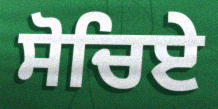
ਸੋਚਿਏ